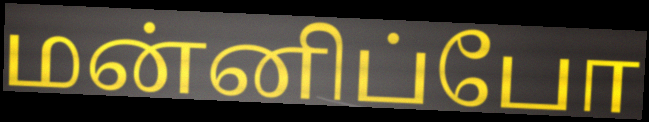
மன்னிப்போ